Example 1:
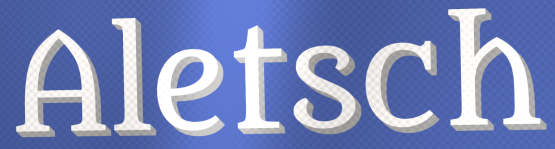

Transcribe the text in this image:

Aletsch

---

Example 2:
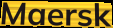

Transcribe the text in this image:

Maersk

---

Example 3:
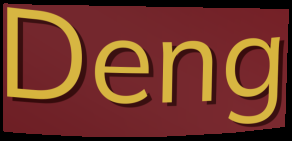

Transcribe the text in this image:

Deng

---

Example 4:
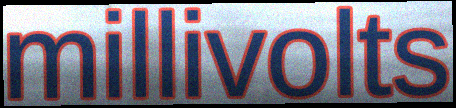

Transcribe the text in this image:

millivolts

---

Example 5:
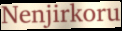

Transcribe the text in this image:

Nenjirkoru